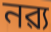
নৱ্য